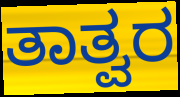
ತಾತ್ವರ